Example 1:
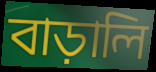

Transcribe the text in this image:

বাড়ালি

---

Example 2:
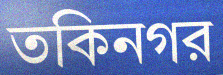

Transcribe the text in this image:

তকিনগর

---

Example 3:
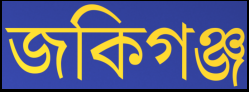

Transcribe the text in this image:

জকিগঞ্জ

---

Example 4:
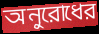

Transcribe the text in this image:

অনুরোধের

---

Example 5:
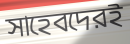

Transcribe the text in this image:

সাহেবদেরই